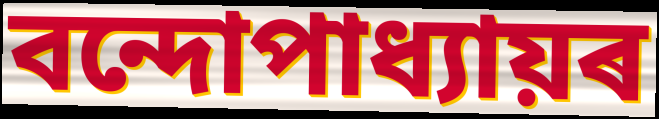
বন্দোপাধ্যায়ৰ